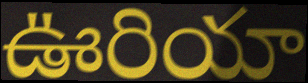
ఊరియా